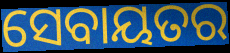
ସେବାୟତର